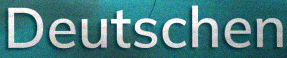
Deutschen